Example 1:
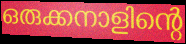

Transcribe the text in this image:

ഒരുക്കനാളിന്റെ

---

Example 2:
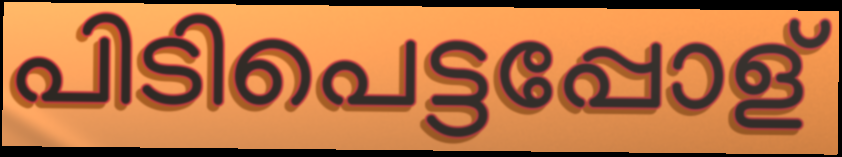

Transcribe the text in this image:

പിടിപെട്ടപ്പോള്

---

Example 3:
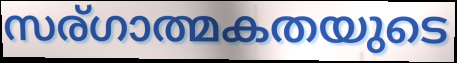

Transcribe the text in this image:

സര്ഗാത്മകതയുടെ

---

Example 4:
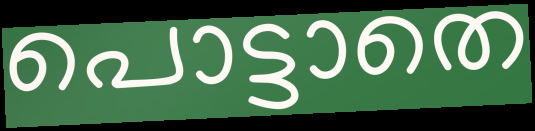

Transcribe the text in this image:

പൊട്ടാതെ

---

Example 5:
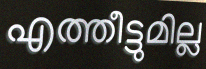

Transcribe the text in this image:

എത്തീട്ടുമില്ല